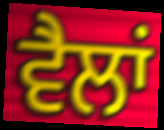
ਵੈਲਾਂ